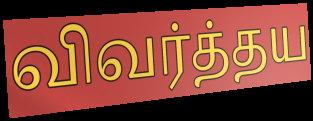
விவர்த்தய